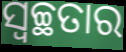
ସ୍ଵଚ୍ଛତାର